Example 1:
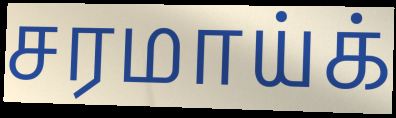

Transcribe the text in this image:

சரமாய்க்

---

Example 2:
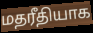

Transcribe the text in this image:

மதரீதியாக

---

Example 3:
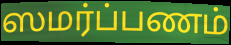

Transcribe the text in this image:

ஸமர்ப்பணம்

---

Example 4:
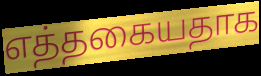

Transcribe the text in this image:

எத்தகையதாக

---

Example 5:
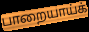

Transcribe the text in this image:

பாறையாய்க்